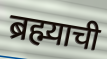
ब्रह्म्याची